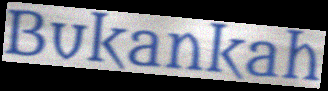
Bukankah